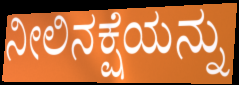
ನೀಲಿನಕ್ಷೆಯನ್ನು